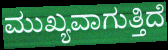
ಮುಖ್ಯವಾಗುತ್ತಿದೆ